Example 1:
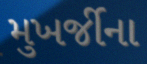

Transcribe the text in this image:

મુખર્જીના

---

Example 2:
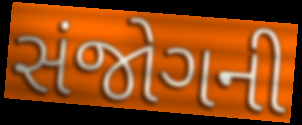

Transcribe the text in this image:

સંજોગની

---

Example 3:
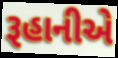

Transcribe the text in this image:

રૂહાનીએ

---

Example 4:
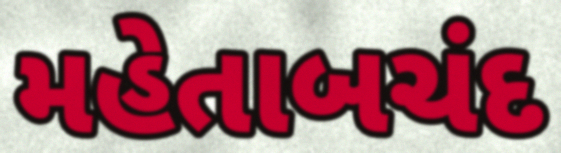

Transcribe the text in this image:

મહેતાબચંદ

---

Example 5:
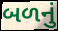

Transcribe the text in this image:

બળનું